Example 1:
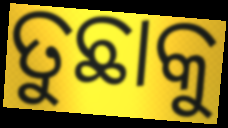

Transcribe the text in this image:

ତୁଛାକୁ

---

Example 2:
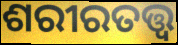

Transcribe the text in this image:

ଶରୀରତତ୍ତ୍ୱ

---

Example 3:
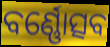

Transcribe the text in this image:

ବର୍ଣ୍ଣୋତ୍ସବ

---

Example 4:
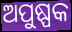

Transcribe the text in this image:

ଅପୁଷ୍ପକ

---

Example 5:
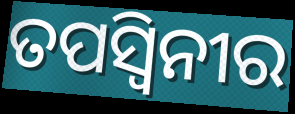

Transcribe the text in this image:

ତପସ୍ୱିନୀର